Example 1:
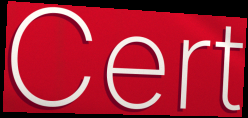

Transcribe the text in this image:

Cert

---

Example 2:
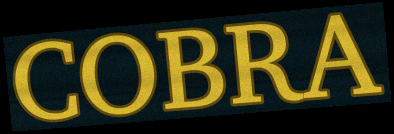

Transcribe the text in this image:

COBRA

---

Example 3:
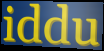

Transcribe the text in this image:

iddu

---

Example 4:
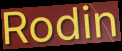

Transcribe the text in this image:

Rodin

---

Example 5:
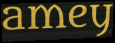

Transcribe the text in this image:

amey